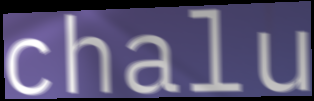
chalu